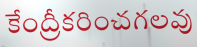
కేంద్రీకరించగలవు